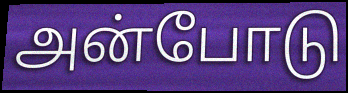
அன்போடு